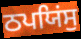
ਠਪਯਿਂਸੁ